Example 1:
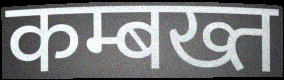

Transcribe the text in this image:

कम्बख्त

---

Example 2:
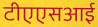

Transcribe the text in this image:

टीएएसआई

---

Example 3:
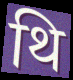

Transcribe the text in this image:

थि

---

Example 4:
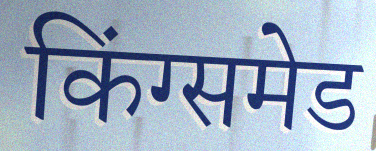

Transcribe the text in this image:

किंग्समेड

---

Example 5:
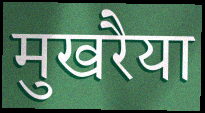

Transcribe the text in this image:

मुखरैया